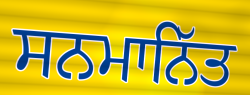
ਸਨਮਾਨਿੱਤ